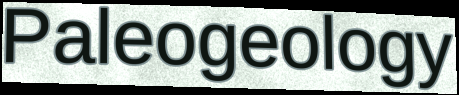
Paleogeology